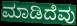
ಮಾಡಿದೆವು